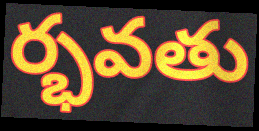
ర్భవతు